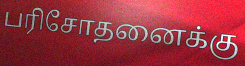
பரிசோதனைக்கு